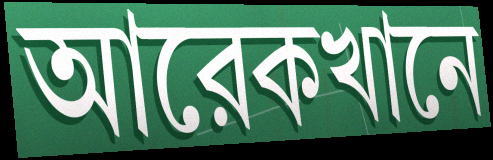
আরেকখানে